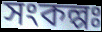
সংকল্পঃ